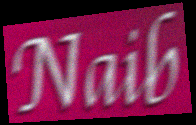
Naib